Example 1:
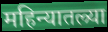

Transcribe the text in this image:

महिन्यातल्या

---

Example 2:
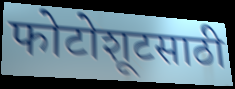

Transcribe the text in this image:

फोटोशूटसाठी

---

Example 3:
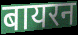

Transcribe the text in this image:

बायरन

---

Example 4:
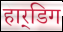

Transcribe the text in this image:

हार्डिग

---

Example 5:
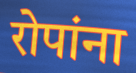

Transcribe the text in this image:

रोपांना